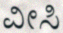
ವೀಸಿ